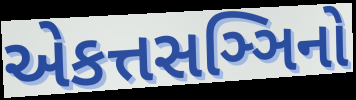
એકત્તસઞ્ઞિનો